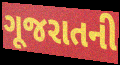
ગૂજરાતની